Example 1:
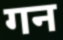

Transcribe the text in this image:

गन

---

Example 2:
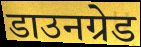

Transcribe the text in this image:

डाउनग्रेड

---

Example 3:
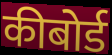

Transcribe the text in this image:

कीबोर्ड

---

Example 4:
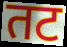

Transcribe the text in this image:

तट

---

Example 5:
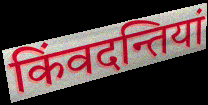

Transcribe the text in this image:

किंवदन्तियां